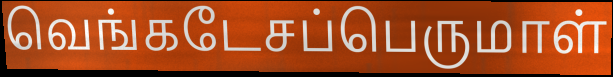
வெங்கடேசப்பெருமாள்